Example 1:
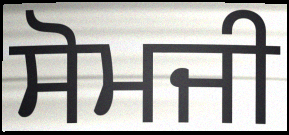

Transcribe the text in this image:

ਸੋਮਜੀ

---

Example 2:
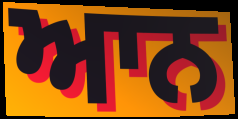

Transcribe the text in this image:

ਆਨ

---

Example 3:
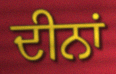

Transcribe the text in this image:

ਦੀਨਾਂ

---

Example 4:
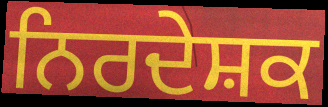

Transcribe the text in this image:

ਨਿਰਦੇਸ਼ਕ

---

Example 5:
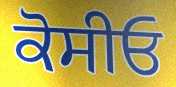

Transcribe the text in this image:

ਕੋਸੀਓ